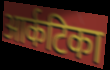
आर्कटिका